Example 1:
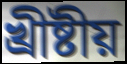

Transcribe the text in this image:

খ্ৰীষ্টীয়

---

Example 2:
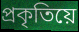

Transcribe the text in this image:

প্ৰকৃতিয়ে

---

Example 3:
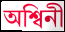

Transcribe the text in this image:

অশ্বিনী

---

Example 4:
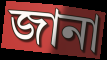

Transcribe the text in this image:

জানা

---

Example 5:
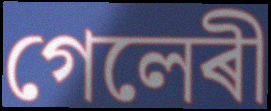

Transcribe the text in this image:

গেলেৰী